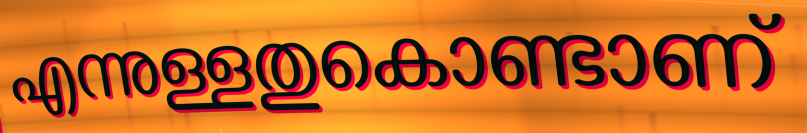
എന്നുള്ളതുകൊണ്ടാണ്